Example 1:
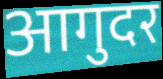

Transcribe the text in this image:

आगुदर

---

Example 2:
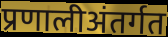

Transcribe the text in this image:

प्रणालीअंतर्गत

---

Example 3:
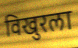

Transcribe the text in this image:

विखुरला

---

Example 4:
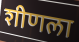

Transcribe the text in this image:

शीणला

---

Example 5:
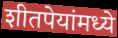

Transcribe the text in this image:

शीतपेयांमध्ये